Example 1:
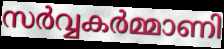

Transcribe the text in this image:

സർവ്വകർമ്മാണി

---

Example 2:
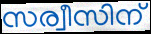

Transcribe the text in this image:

സര്വീസിന്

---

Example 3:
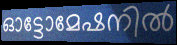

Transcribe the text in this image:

ഓട്ടോമേഷനിൽ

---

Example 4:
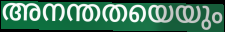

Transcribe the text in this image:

അനന്തതയെയും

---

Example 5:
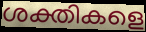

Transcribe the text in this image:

ശക്തികളെ